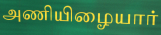
அணியிழையார்